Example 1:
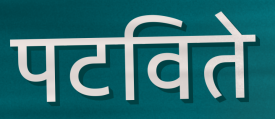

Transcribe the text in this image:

पटविते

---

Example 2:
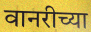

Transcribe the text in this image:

वानरीच्या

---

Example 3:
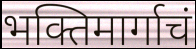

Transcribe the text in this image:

भक्तिमार्गाचं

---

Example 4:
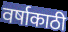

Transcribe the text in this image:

वर्षाकाठी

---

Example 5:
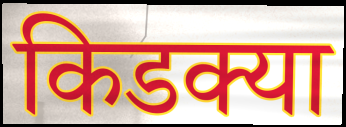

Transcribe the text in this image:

किडक्या